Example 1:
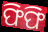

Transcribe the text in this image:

ଫିଫି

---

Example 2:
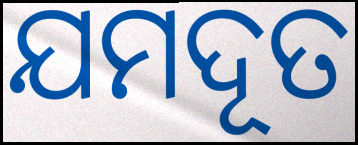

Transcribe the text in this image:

ଯମଦୂତ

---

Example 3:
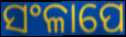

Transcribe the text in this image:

ସଂଳାପେ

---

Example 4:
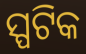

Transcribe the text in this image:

ସ୍ପଟିକ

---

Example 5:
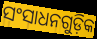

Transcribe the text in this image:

ସଂସାଧନଗୁଡ଼ିକ